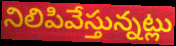
నిలిపివేస్తున్నట్లు